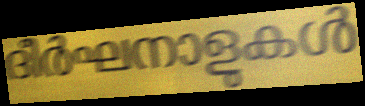
ദീർഘനാളുകൾ